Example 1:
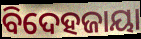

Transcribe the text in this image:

ବିଦେହଜାୟା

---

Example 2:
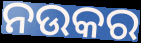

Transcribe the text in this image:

ନଉକର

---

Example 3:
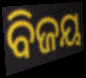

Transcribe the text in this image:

ବିଜୟ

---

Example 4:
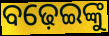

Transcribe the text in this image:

ବଢ଼େଇଙ୍କୁ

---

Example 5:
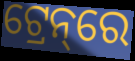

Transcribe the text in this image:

ଟ୍ରେନ୍‌ରେ